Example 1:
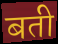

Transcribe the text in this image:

बती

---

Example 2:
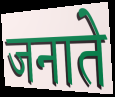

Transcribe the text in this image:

जनाते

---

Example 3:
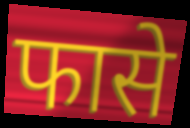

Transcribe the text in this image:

फासे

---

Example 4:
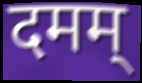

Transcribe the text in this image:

दमम्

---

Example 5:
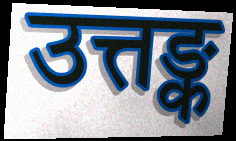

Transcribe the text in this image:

उत्तङ्क